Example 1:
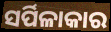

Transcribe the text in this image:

ସର୍ପିଳାକାର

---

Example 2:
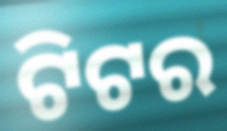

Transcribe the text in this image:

ଟିଟର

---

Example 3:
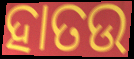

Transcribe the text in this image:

ହାତଉ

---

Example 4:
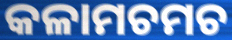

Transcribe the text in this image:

କଳାମଚମଚ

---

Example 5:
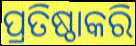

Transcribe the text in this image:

ପ୍ରତିଷ୍ଠାକରି